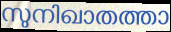
സുനിഖാതത്താ